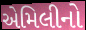
એમિલીનો